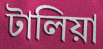
টালিয়া